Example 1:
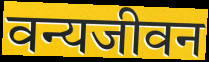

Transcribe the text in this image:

वन्यजीवन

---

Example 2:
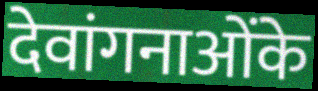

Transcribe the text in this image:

देवांगनाओंके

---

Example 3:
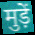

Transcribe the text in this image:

मुड़ें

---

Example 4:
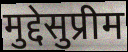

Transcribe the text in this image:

मुद्देसुप्रीम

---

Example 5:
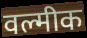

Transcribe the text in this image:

वल्मीक